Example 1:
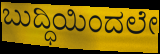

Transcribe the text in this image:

ಬುದ್ಧಿಯಿಂದಲೇ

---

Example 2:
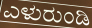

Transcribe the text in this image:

ಎಳುರುಂಡಿ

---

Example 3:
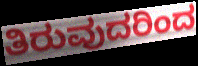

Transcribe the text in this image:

ತಿರುವುದರಿಂದ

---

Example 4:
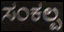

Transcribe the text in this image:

ಸಂಕಲ್ಪ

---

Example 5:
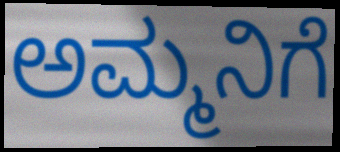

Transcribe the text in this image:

ಅಮ್ಮನಿಗೆ